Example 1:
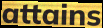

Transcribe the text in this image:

attains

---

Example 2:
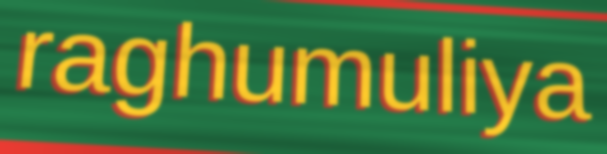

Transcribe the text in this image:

raghumuliya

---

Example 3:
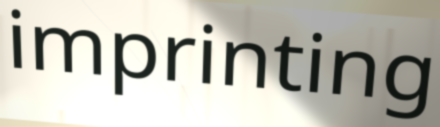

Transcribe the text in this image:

imprinting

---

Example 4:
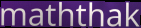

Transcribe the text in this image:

maththak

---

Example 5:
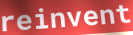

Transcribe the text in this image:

reinvent